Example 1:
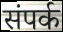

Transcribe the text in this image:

संपर्क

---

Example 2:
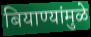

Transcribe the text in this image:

बियाण्यांमुळे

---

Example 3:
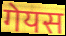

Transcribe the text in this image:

गेयस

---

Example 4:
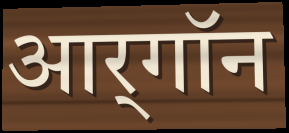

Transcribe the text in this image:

आर्‌गॉन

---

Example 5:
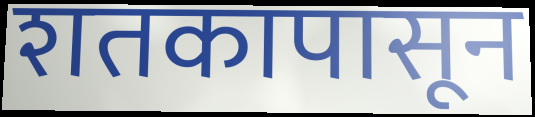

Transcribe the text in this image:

शतकापासून